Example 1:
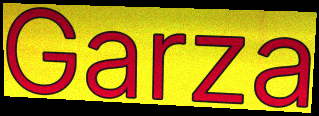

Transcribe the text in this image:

Garza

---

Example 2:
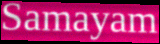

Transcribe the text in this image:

Samayam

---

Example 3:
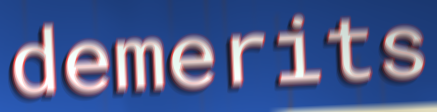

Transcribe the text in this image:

demerits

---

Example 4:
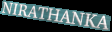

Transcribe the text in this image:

NIRATHANKA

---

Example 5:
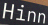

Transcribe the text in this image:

Hinn